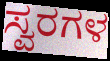
ಸ್ವರಗಳ